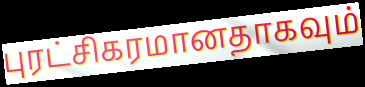
புரட்சிகரமானதாகவும்